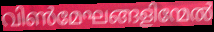
വിൺമേഘങ്ങളിന്മേൽ